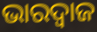
ଭାରଦ୍ୱାଜ